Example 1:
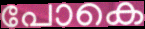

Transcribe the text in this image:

പോകെ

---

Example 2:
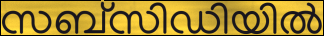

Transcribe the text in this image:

സബ്സിഡിയിൽ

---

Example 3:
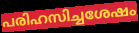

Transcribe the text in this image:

പരിഹസിച്ചശേഷം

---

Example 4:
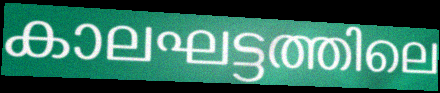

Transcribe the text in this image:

കാലഘട്ടത്തിലെ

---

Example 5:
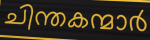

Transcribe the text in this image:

ചിന്തകന്മാർ